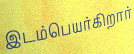
இடம்பெயர்கிறார்